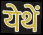
येथें